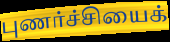
புணர்ச்சியைக்